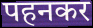
पहनकर